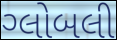
ગ્લોબલી